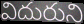
విదురుని